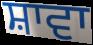
ਸ਼ਾਵਾ